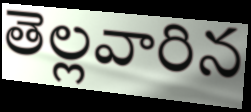
తెల్లవారిన